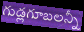
గుడ్లగూబలన్నీ